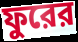
ফুরের